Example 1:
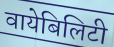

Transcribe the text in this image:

वायेबिलिटी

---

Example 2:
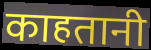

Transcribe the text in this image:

काहतानी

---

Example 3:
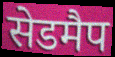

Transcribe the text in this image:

सेडमैप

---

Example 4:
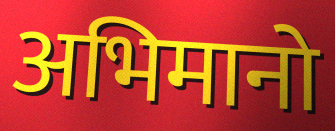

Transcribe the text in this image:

अभिमानो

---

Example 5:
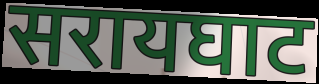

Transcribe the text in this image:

सरायघाट